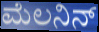
ಮೆಲನಿನ್